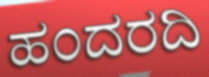
ಹಂದರದಿ